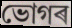
ভোগৰ